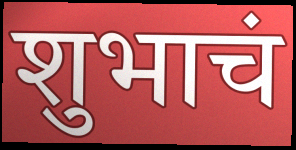
शुभाचं